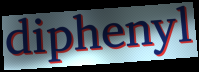
diphenyl